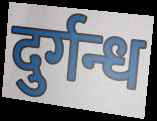
दुर्गन्ध